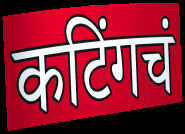
कटिंगचं